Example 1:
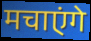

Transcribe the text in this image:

मचाएंगे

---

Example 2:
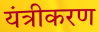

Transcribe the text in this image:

यंत्रीकरण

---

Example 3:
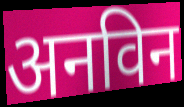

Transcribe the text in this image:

अनविन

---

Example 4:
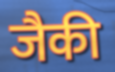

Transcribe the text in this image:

जैकी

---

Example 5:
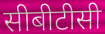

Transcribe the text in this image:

सीबीटीसी